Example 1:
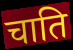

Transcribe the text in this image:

चाति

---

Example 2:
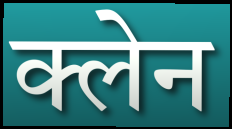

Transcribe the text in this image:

क्लेन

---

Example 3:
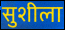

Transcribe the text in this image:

सुशीला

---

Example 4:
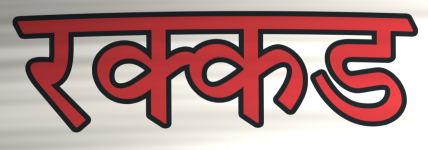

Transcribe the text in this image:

रक्कड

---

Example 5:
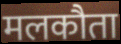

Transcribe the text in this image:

मलकौता